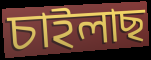
চাইলাছ